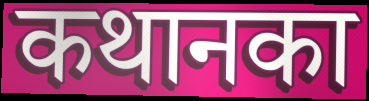
कथानका